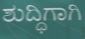
ಶುದ್ಧಿಗಾಗಿ